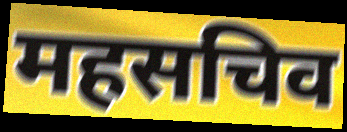
महसचिव